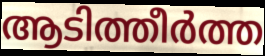
ആടിത്തീർത്ത